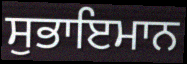
ਸੁਭਾਇਮਾਨ